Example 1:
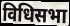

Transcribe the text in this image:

विधिसभा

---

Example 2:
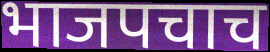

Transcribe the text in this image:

भाजपचाच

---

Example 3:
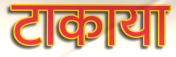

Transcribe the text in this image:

टाकाया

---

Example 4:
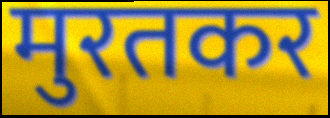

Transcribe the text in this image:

मुरतकर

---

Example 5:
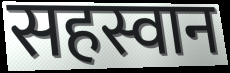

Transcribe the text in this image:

सहस्वान